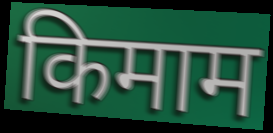
किमाम